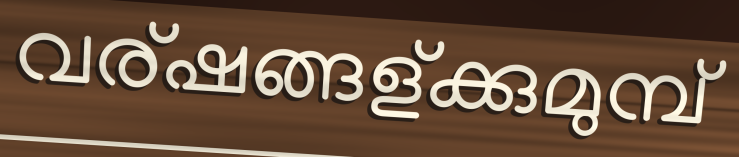
വര്ഷങ്ങള്ക്കുമുമ്പ്